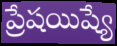
ప్రేషయిష్యే